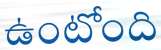
ఉంటోంది